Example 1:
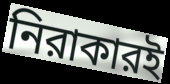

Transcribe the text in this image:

নিরাকারই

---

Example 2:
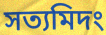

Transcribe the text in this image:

সত্যমিদং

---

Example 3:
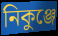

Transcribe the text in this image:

নিকুঞ্জে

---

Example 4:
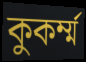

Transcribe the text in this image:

কুকর্ম্ম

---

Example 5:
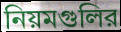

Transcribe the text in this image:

নিয়মগুলির